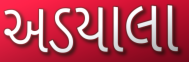
અડયાલા